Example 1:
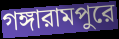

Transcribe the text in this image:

গঙ্গারামপুরে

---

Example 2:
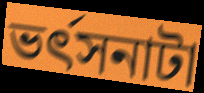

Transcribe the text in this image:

ভর্ৎসনাটা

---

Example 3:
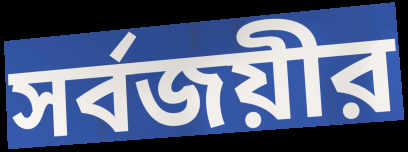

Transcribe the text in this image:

সর্বজয়ীর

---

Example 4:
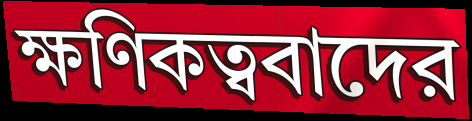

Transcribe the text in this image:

ক্ষণিকত্ববাদের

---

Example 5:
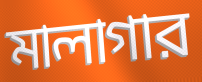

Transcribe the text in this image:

মালাগার